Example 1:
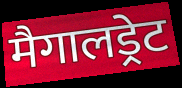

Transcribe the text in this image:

मैगालड्रेट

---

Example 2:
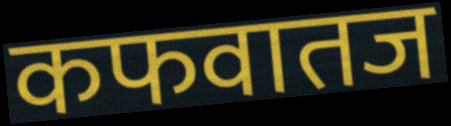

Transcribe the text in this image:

कफवातज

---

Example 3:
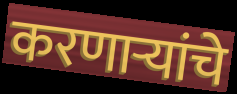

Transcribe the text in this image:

करणाऱ्यांचे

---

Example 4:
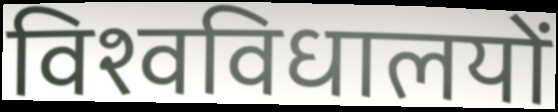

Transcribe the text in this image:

विश्वविधालयों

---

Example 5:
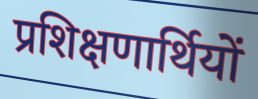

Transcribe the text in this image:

प्रशिक्षणार्थियों